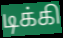
டிக்கி